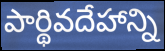
పార్థివదేహాన్ని